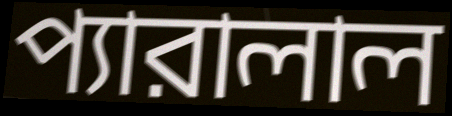
প্যারালাল